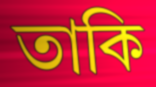
তাকি